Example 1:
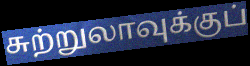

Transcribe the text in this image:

சுற்றுலாவுக்குப்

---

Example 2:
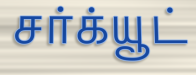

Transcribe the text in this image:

சர்க்யூட்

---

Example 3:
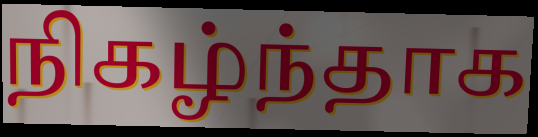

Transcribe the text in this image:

நிகழ்ந்தாக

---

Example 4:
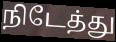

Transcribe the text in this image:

நிடேத்து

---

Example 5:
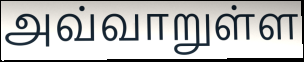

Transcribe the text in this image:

அவ்வாறுள்ள